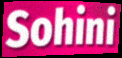
Sohini